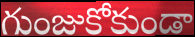
గుంజుకోకుండా